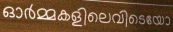
ഓർമ്മകളിലെവിടെയോ